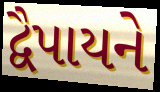
દ્વૈપાયને